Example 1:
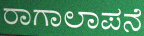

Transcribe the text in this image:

ರಾಗಾಲಾಪನೆ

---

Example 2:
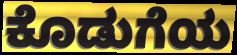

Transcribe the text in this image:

ಕೊಡುಗೆಯ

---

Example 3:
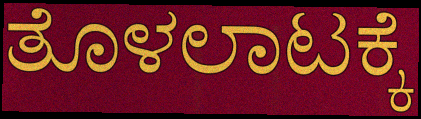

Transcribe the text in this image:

ತೊಳಲಾಟಕ್ಕೆ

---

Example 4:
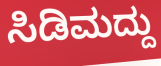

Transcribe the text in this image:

ಸಿಡಿಮದ್ದು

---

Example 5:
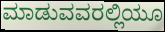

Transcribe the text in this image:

ಮಾಡುವವರಲ್ಲಿಯೂ